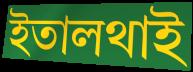
ইতালথাই